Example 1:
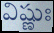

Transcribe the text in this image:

విష్ణుః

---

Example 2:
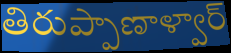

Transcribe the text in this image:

తిరుప్పాణాళ్వార్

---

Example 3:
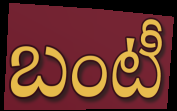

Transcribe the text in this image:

బంటీ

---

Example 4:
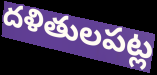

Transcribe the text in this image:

దళితులపట్ల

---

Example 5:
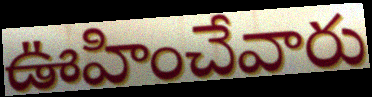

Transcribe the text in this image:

ఊహించేవారు